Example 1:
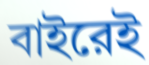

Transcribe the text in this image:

বাইরেই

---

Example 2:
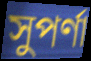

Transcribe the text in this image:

সুপর্ণা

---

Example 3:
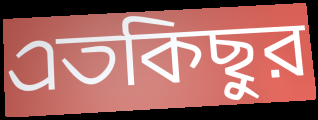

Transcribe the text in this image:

এতকিছুর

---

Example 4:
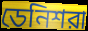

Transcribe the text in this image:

ডেনিশরা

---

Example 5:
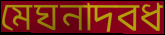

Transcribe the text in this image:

মেঘনাদবধ